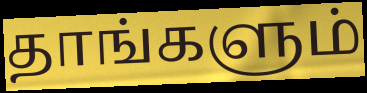
தாங்களும்